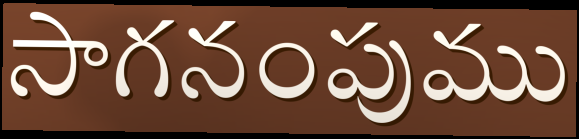
సాగనంపుము